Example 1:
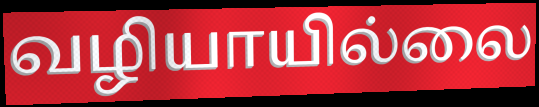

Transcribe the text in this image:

வழியாயில்லை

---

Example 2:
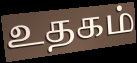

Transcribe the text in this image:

உதகம்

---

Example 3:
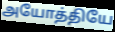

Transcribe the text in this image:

அயோத்தியே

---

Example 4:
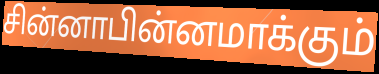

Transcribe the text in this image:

சின்னாபின்னமாக்கும்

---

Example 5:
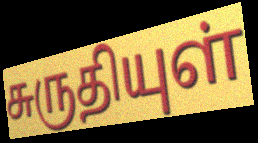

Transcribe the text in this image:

சுருதியுள்